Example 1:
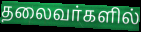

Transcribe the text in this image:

தலைவர்களில்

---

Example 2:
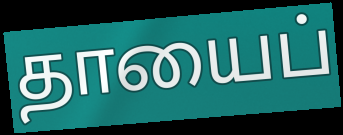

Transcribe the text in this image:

தாயைப்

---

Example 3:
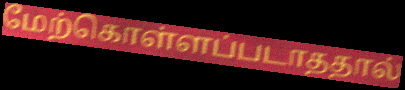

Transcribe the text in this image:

மேற்கொள்ளப்படாததால்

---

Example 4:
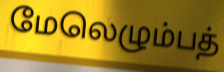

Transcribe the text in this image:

மேலெழும்பத்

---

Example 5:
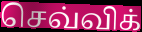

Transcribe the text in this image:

செவ்விக்